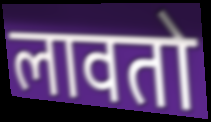
लावतो